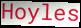
Hoyles